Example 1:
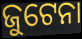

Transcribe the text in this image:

ଜୁଟେନା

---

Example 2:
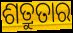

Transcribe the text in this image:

ଶତ୍ରୁତାର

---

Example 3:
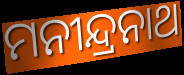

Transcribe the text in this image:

ମନୀନ୍ଦ୍ରନାଥ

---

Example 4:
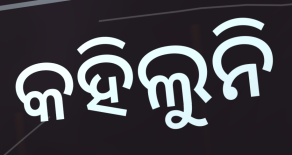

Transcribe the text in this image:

କହିଲୁନି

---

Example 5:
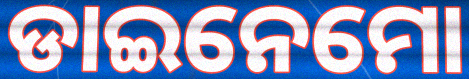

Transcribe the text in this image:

ଡାଇନେମୋ